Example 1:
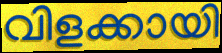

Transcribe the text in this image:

വിളക്കായി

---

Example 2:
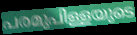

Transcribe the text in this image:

പരമുപിള്ളയുടെ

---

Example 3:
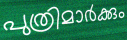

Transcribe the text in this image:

പുത്രിമാർക്കും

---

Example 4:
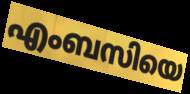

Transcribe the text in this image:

എംബസിയെ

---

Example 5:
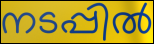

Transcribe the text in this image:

നടപ്പിൽ